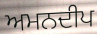
ਅਮਨਦੀਪ